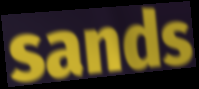
sands